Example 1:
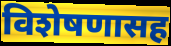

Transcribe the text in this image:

विशेषणासह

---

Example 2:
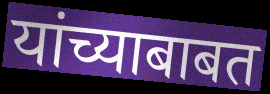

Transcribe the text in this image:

यांच्याबाबत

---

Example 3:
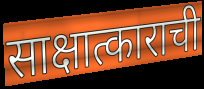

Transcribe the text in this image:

साक्षात्काराची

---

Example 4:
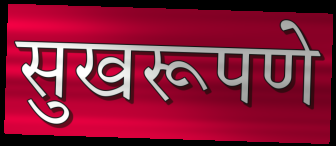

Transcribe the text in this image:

सुखरूपणे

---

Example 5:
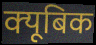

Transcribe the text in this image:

क्यूबिक